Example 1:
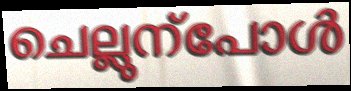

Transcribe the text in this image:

ചെല്ലുന്പോൾ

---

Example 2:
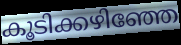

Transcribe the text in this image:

കൂടിക്കഴിഞ്ഞേ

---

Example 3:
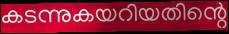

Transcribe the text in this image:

കടന്നുകയറിയതിന്റെ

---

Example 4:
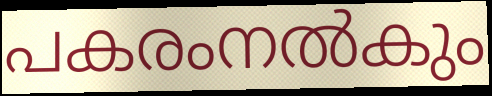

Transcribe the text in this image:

പകരംനൽകും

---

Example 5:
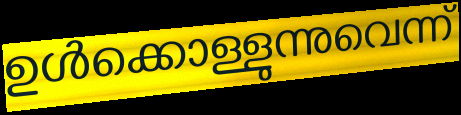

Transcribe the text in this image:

ഉൾക്കൊള്ളുന്നുവെന്ന്